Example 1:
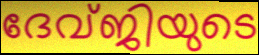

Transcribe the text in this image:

ദേവ്ജിയുടെ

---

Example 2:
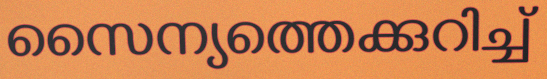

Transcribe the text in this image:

സൈന്യത്തെക്കുറിച്ച്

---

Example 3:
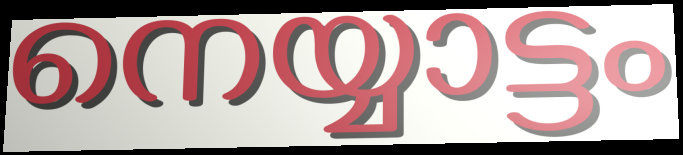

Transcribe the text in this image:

നെയ്യാട്ടം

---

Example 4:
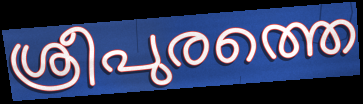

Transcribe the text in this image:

ശ്രീപുരത്തെ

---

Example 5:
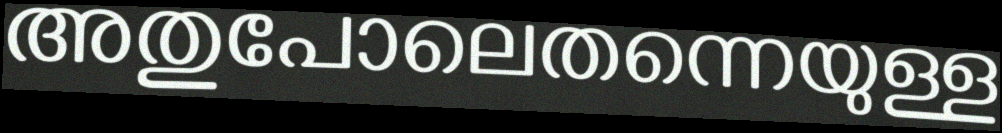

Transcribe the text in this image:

അതുപോലെതന്നെയുള്ള